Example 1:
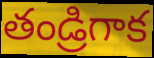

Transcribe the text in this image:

తండ్రిగాక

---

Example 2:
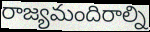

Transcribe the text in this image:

రాజ్యమందిరాల్ని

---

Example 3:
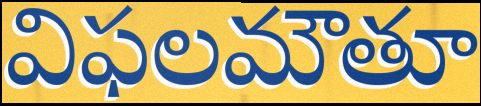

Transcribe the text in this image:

విఫలమౌతూ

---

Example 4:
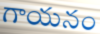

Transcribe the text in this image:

గాయనం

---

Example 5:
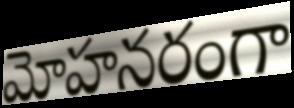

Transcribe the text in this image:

మోహనరంగా